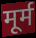
मूर्म